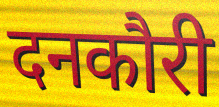
दनकौरी